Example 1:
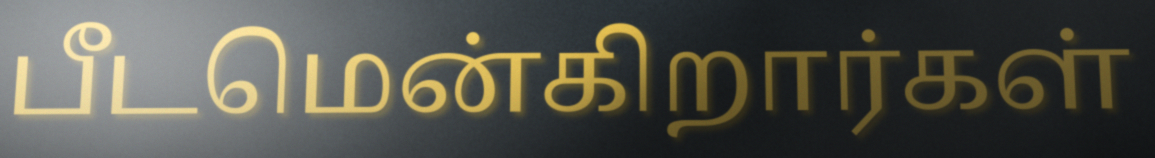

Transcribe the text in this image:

பீடமென்கிறார்கள்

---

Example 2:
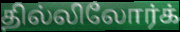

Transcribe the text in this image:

தில்லிலோர்க்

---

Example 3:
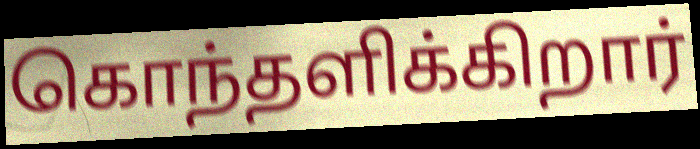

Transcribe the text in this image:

கொந்தளிக்கிறார்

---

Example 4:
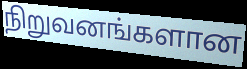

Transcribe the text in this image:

நிறுவனங்களான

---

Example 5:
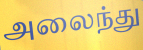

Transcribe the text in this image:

அலைந்து